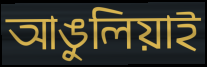
আঙুলিয়াই